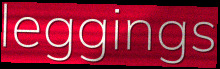
leggings